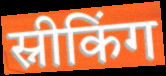
स्नीकिंग